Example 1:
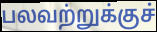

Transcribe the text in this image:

பலவற்றுக்குச்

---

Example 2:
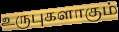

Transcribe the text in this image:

உருபுகளாகும்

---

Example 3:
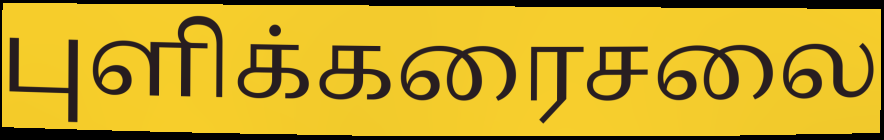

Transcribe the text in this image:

புளிக்கரைசலை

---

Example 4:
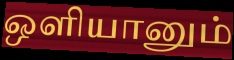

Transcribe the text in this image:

ஒளியானும்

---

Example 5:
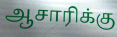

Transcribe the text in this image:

ஆசாரிக்கு